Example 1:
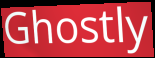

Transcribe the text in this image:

Ghostly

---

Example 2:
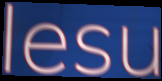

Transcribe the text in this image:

Iesu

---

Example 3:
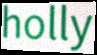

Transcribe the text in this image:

holly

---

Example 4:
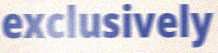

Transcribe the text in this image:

exclusively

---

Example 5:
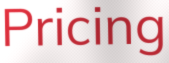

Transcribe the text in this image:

Pricing